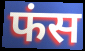
फंस